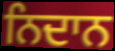
ਨਿਦਾਨ